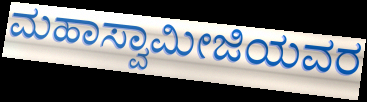
ಮಹಾಸ್ವಾಮೀಜಿಯವರ